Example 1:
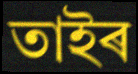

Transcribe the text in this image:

তাইৰ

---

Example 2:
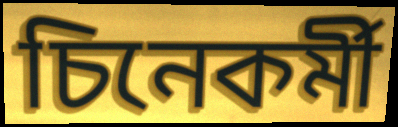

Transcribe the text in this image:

চিনেকৰ্মী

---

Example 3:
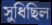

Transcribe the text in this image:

সুধিছিল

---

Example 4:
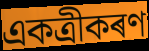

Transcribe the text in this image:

একত্ৰীকৰণ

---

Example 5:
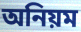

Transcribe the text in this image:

অনিয়ম